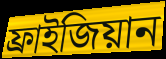
ফ্রাইজিয়ান